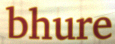
bhure